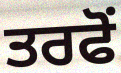
ਤਰਫੋਂ